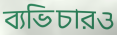
ব্যভিচারও